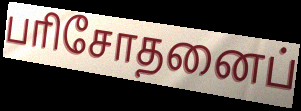
பரிசோதனைப்